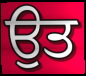
ਉਤ